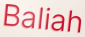
Baliah